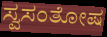
ಸ್ವಸಂತೋಷ